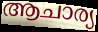
ആചാര്യ